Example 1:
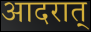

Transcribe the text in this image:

आदरात्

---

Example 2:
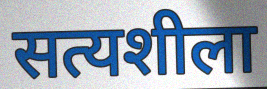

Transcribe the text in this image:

सत्यशीला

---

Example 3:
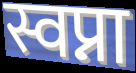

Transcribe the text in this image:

स्वप्ना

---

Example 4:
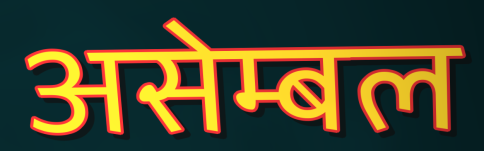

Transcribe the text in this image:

असेम्बल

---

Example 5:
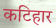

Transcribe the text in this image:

कटिहार